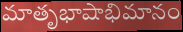
మాతృభాషాభిమానం